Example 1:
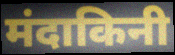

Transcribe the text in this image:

मंदाकिनी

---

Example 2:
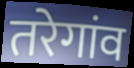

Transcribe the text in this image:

तरेगांव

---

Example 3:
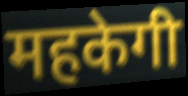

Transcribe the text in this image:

महकेगी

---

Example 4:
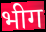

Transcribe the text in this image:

भीग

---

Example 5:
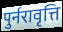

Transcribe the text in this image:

पुर्नरावृत्ति